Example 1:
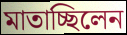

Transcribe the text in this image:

মাতাচ্ছিলেন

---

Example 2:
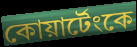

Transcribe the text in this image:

কোয়ার্টেংকে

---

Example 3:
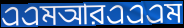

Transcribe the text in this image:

এএমআরএএএম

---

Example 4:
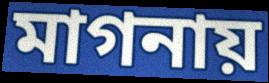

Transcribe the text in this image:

মাগনায়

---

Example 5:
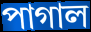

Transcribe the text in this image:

পাগাল